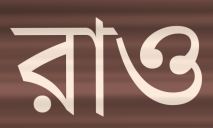
রাও